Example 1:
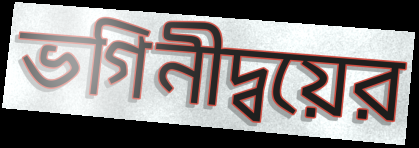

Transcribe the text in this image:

ভগিনীদ্বয়ের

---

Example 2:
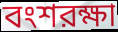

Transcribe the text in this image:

বংশরক্ষা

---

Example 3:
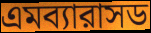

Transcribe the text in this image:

এমব্যারাসড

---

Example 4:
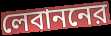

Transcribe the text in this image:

লেবাননের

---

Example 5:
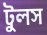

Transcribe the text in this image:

টুলস